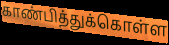
காண்பித்துக்கொள்ள